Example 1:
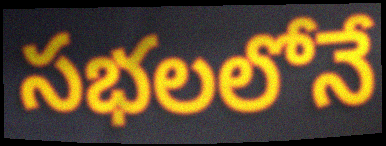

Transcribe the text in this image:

సభలలోనే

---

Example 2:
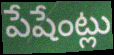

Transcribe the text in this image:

పేషేంట్లు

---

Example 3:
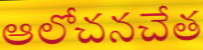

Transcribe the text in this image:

ఆలోచనచేత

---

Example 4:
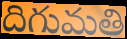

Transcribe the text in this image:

దిగుమతి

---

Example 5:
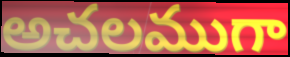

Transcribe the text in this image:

అచలముగా